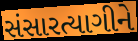
સંસારત્યાગીને